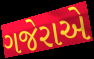
ગજેરાએ